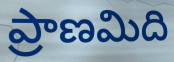
ప్రాణమిది